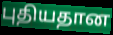
புதியதான